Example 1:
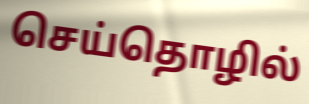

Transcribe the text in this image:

செய்தொழில்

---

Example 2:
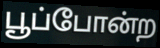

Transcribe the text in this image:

பூப்போன்ற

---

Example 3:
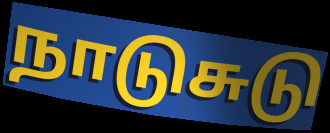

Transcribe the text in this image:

நாடுசுடு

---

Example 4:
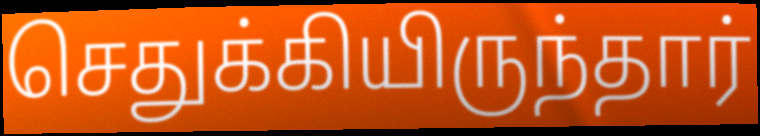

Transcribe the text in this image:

செதுக்கியிருந்தார்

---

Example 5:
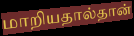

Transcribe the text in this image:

மாறியதால்தான்